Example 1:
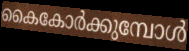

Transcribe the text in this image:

കൈകോർക്കുമ്പോൾ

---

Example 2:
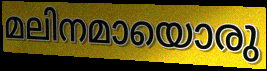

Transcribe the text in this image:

മലിനമായൊരു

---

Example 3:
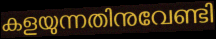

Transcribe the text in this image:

കളയുന്നതിനുവേണ്ടി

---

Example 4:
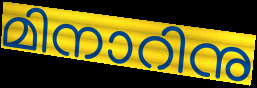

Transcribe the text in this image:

മിനാറിനു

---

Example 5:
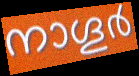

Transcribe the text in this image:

നാഗൂർ